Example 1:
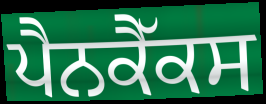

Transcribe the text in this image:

ਪੈਨਕੈੱਕਸ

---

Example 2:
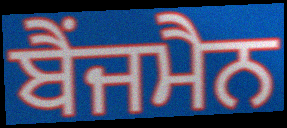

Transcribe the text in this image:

ਬੈਂਜਮੈਨ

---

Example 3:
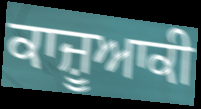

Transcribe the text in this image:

ਕਾਜ਼ੂਆਕੀ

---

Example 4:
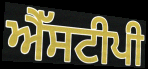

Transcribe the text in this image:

ਐੱਸਟੀਪੀ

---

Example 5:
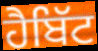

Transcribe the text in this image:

ਹੈਬਿੱਟ